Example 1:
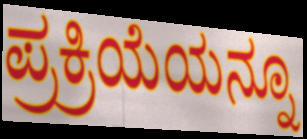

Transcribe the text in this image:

ಪ್ರಕ್ರಿಯೆಯನ್ನೂ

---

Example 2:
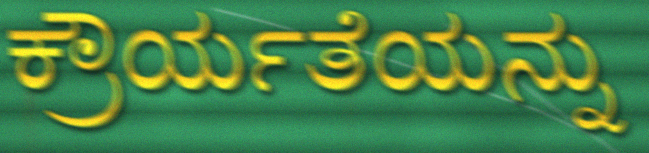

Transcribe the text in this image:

ಕ್ರೌರ್ಯತೆಯನ್ನು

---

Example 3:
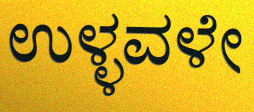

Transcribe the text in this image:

ಉಳ್ಳವಳೇ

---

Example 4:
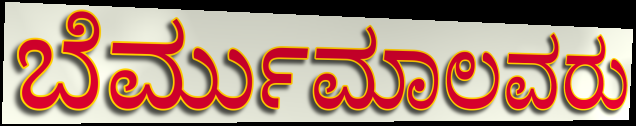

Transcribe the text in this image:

ಬೆರ್ಮುಮಾಲವರು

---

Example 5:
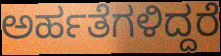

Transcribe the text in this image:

ಅರ್ಹತೆಗಳಿದ್ದರೆ